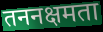
तननक्षमता